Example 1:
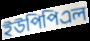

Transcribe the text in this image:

ইউপিপিএল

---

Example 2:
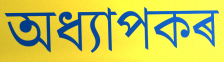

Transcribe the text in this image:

অধ্যাপকৰ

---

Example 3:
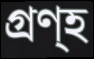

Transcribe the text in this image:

গ্ৰণ্হ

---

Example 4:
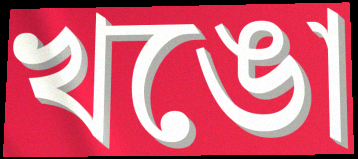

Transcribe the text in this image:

খঙো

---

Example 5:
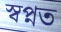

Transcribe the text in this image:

স্বপ্নত